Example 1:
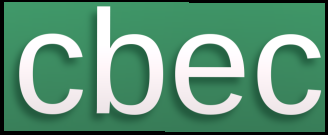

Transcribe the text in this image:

cbec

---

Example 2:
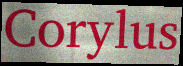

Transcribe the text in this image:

Corylus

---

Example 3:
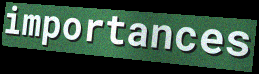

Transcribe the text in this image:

importances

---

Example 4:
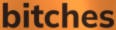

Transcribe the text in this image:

bitches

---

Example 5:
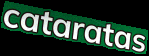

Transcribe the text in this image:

cataratas